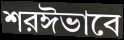
শরঈভাবে